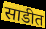
साडीत